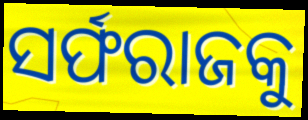
ସର୍ଫରାଜକୁ